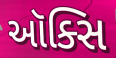
ઑક્સિ